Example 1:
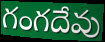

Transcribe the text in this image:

గంగదేవు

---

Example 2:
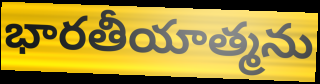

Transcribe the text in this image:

భారతీయాత్మను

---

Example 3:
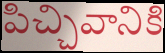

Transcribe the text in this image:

పిచ్చివానికి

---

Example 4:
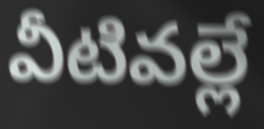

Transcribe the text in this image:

వీటివల్లే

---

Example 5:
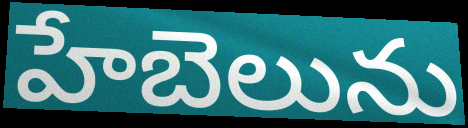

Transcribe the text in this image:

హేబెలును